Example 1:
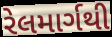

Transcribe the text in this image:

રેલમાર્ગથી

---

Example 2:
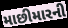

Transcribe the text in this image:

માછીમારની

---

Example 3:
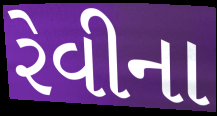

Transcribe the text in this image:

રેવીના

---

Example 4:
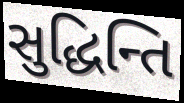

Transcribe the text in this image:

સુદ્ધિન્તિ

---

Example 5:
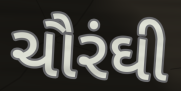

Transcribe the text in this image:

ચૌરંઘી